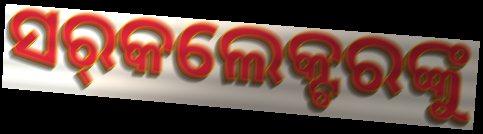
ସର୍‌କଲେକ୍ଟରଙ୍କୁ